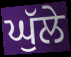
ਘੁੱਲੇ